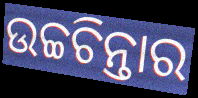
ଉଚ୍ଚଚିନ୍ତାର